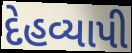
દેહવ્યાપી